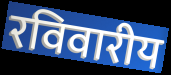
रविवारीय